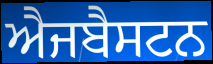
ਐਜਬੈਸਟਨ